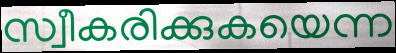
സ്വീകരിക്കുകയെന്ന